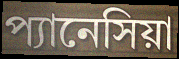
প্যানেসিয়া